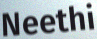
Neethi